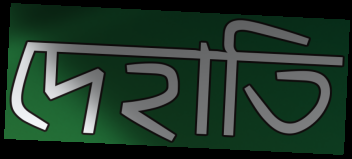
দেহাতি